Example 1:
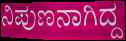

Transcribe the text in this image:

ನಿಪುಣನಾಗಿದ್ದ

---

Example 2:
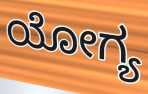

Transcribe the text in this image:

ಯೋಗ್ಯ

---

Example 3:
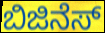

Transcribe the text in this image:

ಬಿಜಿನೆಸ್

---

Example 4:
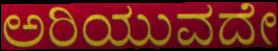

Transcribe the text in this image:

ಅರಿಯುವದೇ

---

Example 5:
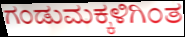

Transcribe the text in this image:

ಗಂಡುಮಕ್ಕಳಿಗಿಂತ